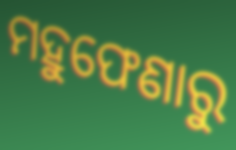
ମହୁଫେଣାରୁ